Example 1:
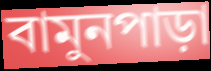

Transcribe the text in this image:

বামুনপাড়া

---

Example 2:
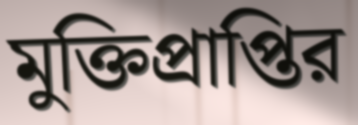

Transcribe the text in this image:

মুক্তিপ্রাপ্তির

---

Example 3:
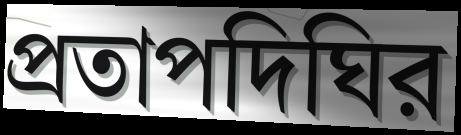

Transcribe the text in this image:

প্রতাপদিঘির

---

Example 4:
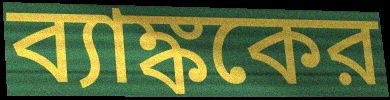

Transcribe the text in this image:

ব্যাঙ্ককের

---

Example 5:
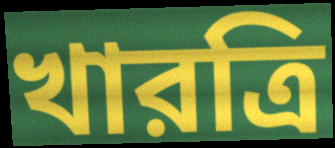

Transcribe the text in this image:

খারত্রি